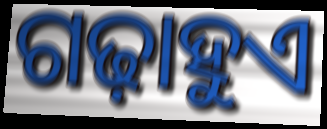
ଗଢ଼ାହୁଏ